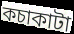
কচাকাটা